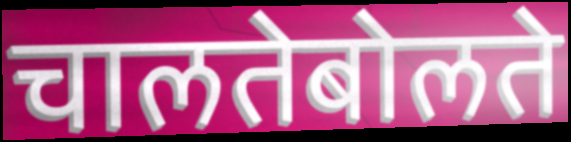
चालतेबोलते